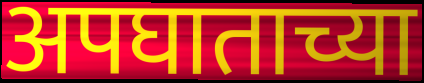
अपघाताच्या